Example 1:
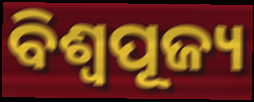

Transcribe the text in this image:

ବିଶ୍ୱପୂଜ୍ୟ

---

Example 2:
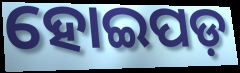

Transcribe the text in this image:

ହୋଇପଡ଼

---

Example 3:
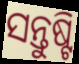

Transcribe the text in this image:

ସନ୍ତୁଷ୍ଟି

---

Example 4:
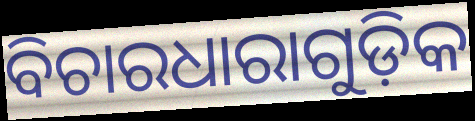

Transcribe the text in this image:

ବିଚାରଧାରାଗୁଡ଼ିକ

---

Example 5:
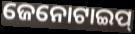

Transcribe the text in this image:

ଜେନୋଟାଇପ୍